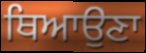
ਥਿਆਉਣਾ